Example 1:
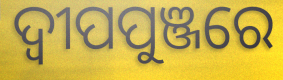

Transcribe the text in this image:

ଦ୍ୱୀପପୁଞ୍ଜରେ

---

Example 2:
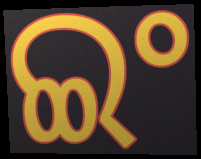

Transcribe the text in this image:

ଇଂ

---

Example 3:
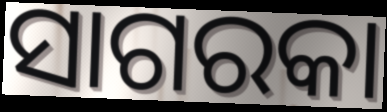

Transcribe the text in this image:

ସାଗରକା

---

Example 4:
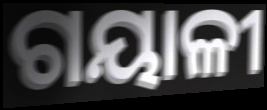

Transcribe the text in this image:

ଗୟାଳୀ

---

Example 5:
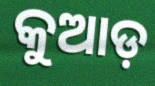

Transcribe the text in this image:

କୁଆଡ଼